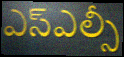
ఎస్ఎల్సీ